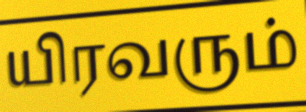
யிரவரும்